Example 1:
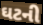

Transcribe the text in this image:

ઘટની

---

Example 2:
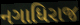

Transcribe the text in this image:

નગાધિરાજ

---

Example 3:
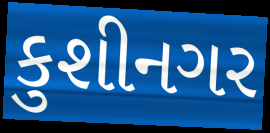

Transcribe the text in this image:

કુશીનગર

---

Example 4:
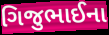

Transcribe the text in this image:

ગિજુભાઈના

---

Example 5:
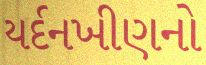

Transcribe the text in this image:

યર્દનખીણનો